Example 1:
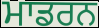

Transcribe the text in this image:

ਮਾਡਰਨ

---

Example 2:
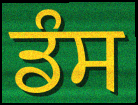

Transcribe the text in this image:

ਡੰਸ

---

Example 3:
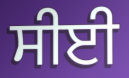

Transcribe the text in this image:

ਸੀਈ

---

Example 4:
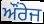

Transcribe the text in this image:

ਔਂਰੇਜ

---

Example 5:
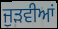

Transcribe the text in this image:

ਜੁੜਵੀਆਂ